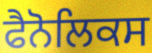
ਫੈਨੋਲਿਕਸ